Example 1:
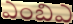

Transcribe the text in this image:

ఎంబిఎ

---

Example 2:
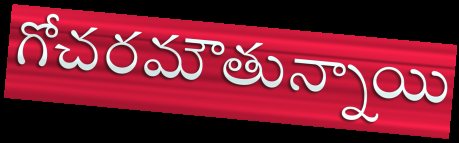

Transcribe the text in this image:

గోచరమౌతున్నాయి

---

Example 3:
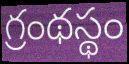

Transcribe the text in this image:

గ్రంథస్థం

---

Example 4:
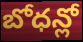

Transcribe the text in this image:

బోధన్లో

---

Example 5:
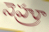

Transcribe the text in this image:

నెహ్రూ